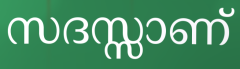
സദസ്സാണ്